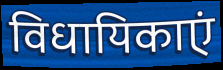
विधायिकाएं